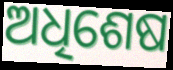
ଅଧିଶେଷ